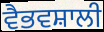
ਵੈਭਵਸ਼ਾਲੀ